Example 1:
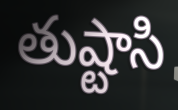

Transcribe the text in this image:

తుష్టాసి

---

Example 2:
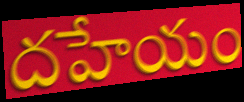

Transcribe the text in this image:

దహేయం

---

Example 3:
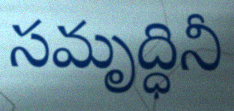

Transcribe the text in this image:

సమృద్ధినీ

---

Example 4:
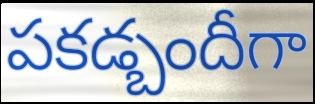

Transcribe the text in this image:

పకడ్బందీగా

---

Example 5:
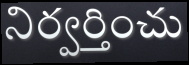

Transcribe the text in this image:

నిర్వర్తించు